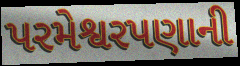
પરમેશ્વરપણાની